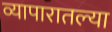
व्यापारातल्या